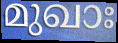
മുഖാഃ